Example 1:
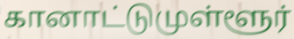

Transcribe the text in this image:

கானாட்டுமுள்ளூர்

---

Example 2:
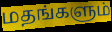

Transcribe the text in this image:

மதங்களும்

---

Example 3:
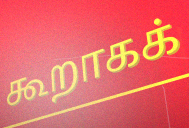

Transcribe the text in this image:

கூறாகக்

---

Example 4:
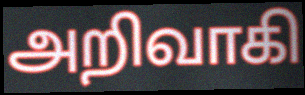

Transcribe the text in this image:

அறிவாகி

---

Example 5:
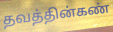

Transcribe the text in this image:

தவத்தின்கண்